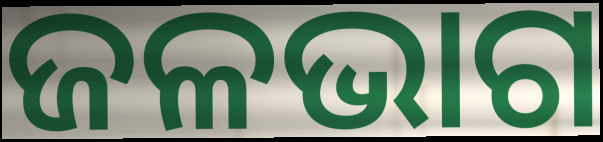
ଜଳଭାଗ